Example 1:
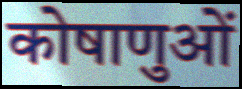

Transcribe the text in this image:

कोषाणुओं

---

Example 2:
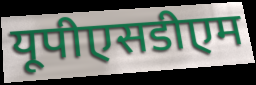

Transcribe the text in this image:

यूपीएसडीएम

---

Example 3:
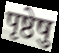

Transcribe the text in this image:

पृष्ठेषु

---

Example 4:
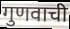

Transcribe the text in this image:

गुणवाची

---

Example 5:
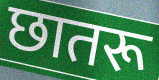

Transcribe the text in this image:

छातरू